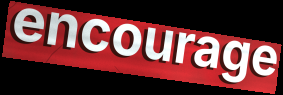
encourage